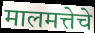
मालमत्तेचे